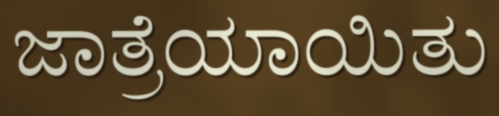
ಜಾತ್ರೆಯಾಯಿತು